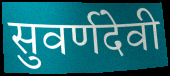
सुवर्णदेवी